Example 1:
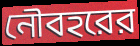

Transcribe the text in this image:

নৌবহরের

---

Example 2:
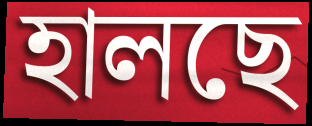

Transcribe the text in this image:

হালছে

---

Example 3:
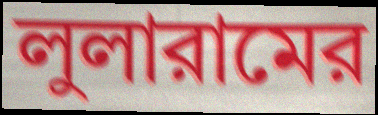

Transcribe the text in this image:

লুলারামের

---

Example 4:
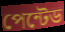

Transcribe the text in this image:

পেন্টেড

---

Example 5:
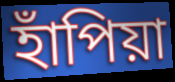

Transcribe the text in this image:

হাঁপিয়া